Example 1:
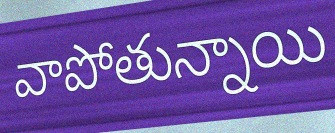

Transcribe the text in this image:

వాపోతున్నాయి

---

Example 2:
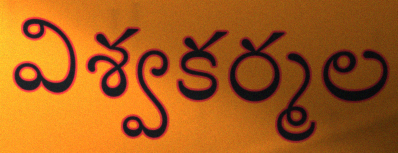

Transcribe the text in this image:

విశ్వకర్మల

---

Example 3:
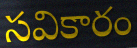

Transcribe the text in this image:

సవికారం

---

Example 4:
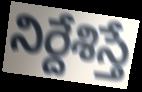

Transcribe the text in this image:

నిర్దేశిస్తే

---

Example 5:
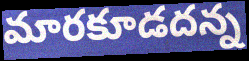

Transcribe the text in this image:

మారకూడదన్న